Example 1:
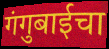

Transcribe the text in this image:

गंगुबाईचा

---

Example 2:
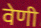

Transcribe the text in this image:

वेणी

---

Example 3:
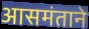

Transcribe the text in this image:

आसमंताने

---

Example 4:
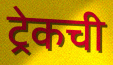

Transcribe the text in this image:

ट्रेकची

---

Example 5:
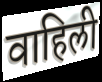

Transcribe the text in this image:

वाहिली